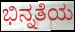
ಭಿನ್ನತೆಯ